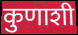
कुणाशी